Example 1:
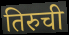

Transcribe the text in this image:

तिरुची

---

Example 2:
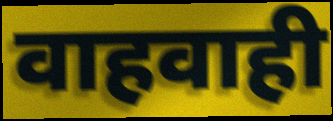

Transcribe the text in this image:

वाहवाही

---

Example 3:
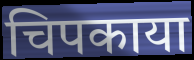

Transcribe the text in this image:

चिपकाया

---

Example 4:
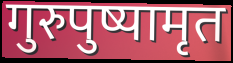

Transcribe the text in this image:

गुरुपुष्यामृत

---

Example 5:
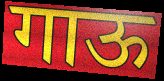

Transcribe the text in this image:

गाऊ